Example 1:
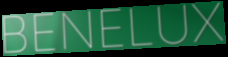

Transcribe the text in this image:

BENELUX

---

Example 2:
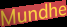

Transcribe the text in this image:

Mundhe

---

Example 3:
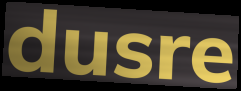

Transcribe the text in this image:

dusre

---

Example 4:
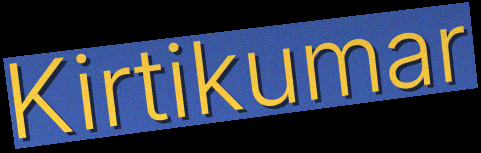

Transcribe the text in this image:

Kirtikumar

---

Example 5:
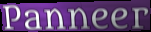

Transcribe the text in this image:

Panneer